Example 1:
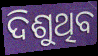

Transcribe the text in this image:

ଦିଶୁଥିବ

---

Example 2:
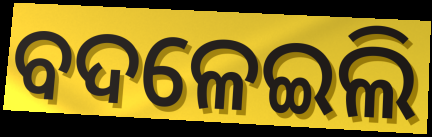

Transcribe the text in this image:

ବଦଳେଇଲି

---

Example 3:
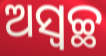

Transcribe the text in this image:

ଅସ୍ଵଚ୍ଛ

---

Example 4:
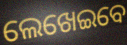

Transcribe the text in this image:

ଲେଖେଇବେ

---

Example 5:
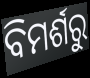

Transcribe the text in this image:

ବିମର୍ଶରୁ